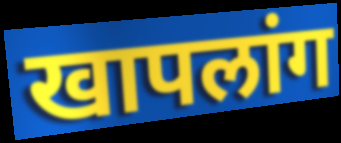
खापलांग